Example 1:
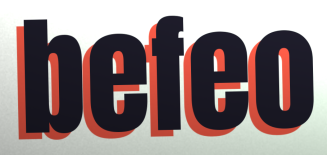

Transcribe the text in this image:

befeo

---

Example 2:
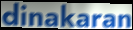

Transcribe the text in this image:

dinakaran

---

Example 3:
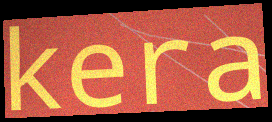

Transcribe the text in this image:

kera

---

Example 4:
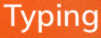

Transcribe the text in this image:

Typing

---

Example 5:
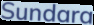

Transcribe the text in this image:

Sundara